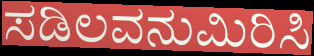
ಸಡಿಲವನುಮಿರಿಸಿ